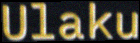
Ulaku